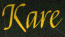
Kare